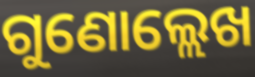
ଗୁଣୋଲ୍ଲେଖ